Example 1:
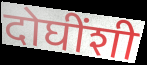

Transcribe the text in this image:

दोघींशी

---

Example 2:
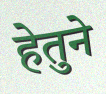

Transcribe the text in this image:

हेतुने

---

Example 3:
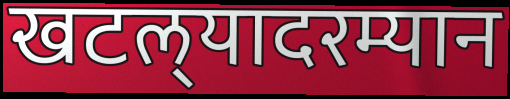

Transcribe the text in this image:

खटल्यादरम्यान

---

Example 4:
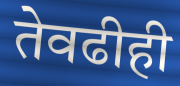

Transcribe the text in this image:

तेवढीही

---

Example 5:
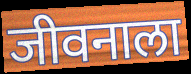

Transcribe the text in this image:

जीवनाला